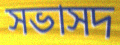
সভাসদ